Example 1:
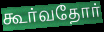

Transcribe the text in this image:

கூர்வதோர்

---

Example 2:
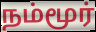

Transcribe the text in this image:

நம்மூர்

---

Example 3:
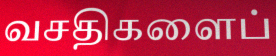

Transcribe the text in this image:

வசதிகளைப்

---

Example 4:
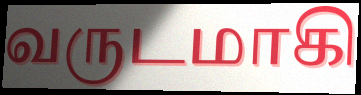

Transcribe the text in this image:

வருடமாகி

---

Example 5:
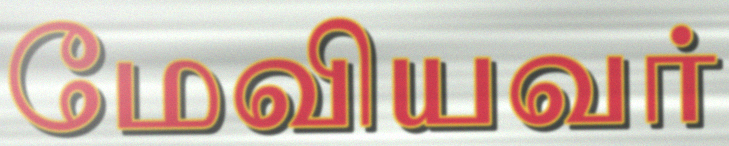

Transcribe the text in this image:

மேவியவர்